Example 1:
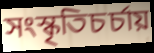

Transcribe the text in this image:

সংস্কৃতিচর্চায়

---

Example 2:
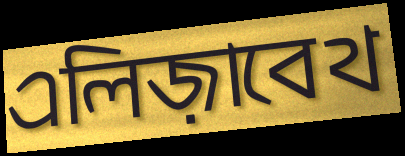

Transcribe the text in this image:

এলিজ়াবেথ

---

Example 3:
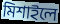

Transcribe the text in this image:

মিশাইলে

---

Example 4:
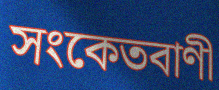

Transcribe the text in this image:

সংকেতবাণী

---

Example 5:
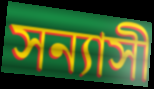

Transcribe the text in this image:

সন্যাসী